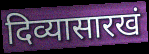
दिव्यासारखं